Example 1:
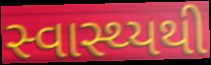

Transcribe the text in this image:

સ્વાસ્થ્યથી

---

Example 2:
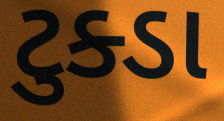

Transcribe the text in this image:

ટુક્ડા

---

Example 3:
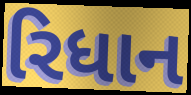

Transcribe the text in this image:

રિધાન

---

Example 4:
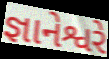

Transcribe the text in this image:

જ્ઞાનેશ્વરે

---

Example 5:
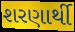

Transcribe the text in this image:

શરણાર્થી